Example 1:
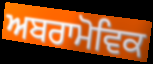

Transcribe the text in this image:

ਅਬਰਾਮੋਵਿਕ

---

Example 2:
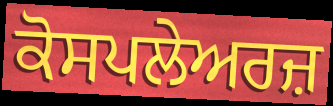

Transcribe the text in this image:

ਕੋਸਪਲੇਅਰਜ਼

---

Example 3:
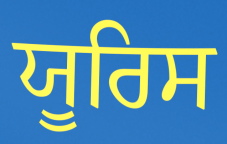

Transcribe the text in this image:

ਯੂਰਿਸ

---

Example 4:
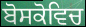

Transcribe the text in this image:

ਬੋਸਕੋਵਿਚ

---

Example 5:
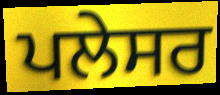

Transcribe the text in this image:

ਪਲੇਸਰ